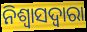
ନିଶ୍ୱାସଦ୍ୱାରା